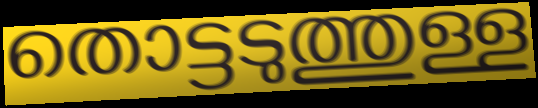
തൊട്ടടുത്തുള്ള